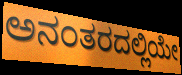
ಅನಂತರದಲ್ಲಿಯೇ